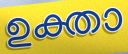
ഉക്താ